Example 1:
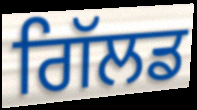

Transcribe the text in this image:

ਗਿੱਲਡ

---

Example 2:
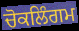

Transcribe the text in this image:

ਚੋਕਲਿੰਗਮ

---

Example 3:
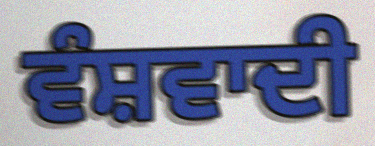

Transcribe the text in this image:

ਵੰਸ਼ਵਾਦੀ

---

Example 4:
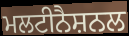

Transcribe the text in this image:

ਮਲਟੀਨੈਸ਼ਨਲ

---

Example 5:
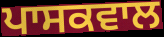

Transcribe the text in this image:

ਪਾਸਕਵਾਲ